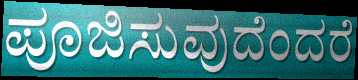
ಪೂಜಿಸುವುದೆಂದರೆ